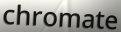
chromate